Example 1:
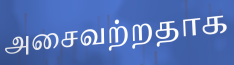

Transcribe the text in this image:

அசைவற்றதாக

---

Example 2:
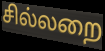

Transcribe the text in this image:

சில்லறை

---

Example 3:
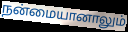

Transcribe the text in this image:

நன்மையானாலும்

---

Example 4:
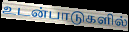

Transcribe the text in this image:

உடன்பாடுகளில்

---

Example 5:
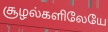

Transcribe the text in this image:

சூழல்களிலேயே